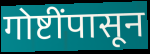
गोष्टींपासून